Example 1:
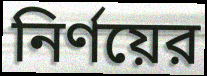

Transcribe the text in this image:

নির্ণয়ের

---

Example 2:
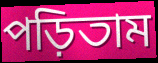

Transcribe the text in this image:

পড়িতাম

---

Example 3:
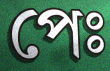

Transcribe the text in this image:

পেঃ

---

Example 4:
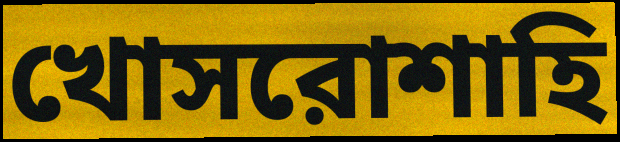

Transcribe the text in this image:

খোসরোশাহি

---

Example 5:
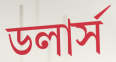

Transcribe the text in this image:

ডলার্স